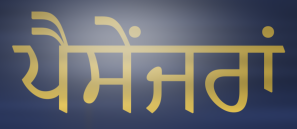
ਪੈਸੇਂਜਰਾਂ